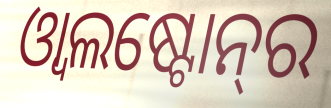
ଓ୍ୱାଲଷ୍ଟୋନ୍‌ର